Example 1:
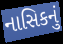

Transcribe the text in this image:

નાસિકનું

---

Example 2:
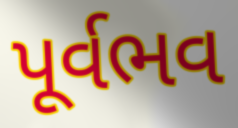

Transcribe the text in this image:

પૂર્વભવ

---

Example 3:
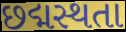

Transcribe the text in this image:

છદ્મસ્થતા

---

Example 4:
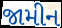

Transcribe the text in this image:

જામીન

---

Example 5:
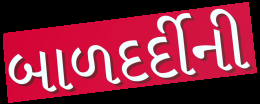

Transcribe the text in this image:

બાળદર્દીની